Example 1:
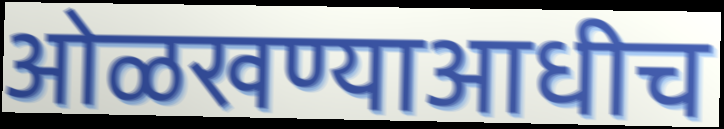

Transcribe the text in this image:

ओळखण्याआधीच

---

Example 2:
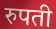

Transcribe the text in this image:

रुपती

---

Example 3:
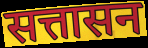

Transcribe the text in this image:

सत्तासन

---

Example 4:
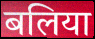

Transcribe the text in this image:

बलिया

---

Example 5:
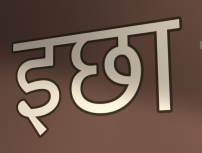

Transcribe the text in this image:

इछा